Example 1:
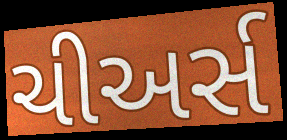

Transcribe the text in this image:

ચીઅર્સ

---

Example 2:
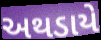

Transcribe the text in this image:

અથડાયે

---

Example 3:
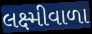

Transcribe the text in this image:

લક્ષ્મીવાળા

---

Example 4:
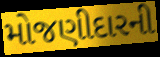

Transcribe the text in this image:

મોજણીદારની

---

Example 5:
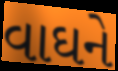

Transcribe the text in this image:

વાઘને